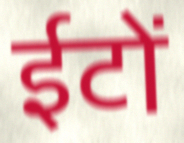
ईटों